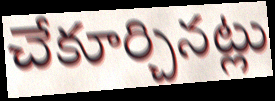
చేకూర్చినట్లు